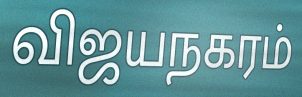
விஜயநகரம்